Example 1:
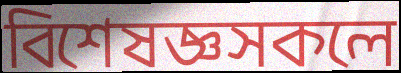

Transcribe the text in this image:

বিশেষজ্ঞসকলে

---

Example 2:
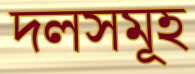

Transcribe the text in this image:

দলসমূহ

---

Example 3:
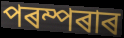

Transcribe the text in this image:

পৰম্পৰাৰ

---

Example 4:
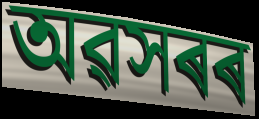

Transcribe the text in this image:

অৱসৰৰ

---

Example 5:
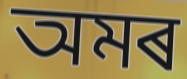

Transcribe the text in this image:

অমৰ